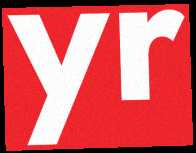
yr